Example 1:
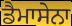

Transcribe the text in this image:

ਡੈਮਾਸੇਨਾ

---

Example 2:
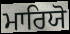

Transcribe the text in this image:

ਮਾਰਿਯੋ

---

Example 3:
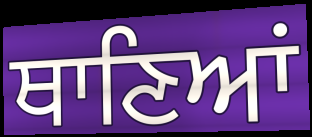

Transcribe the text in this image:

ਥਾਣਿਆਂ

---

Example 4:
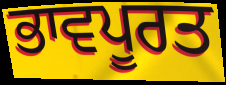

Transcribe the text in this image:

ਭਾਵਪੂਰਤ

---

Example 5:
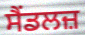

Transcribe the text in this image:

ਸੈਂਡਲਜ਼